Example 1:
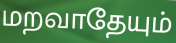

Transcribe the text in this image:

மறவாதேயும்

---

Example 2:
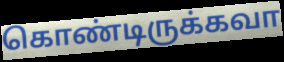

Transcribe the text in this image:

கொண்டிருக்கவா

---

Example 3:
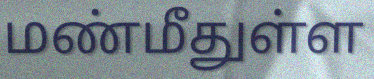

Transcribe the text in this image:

மண்மீதுள்ள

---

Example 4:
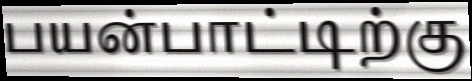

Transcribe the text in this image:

பயன்பாட்டிற்கு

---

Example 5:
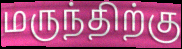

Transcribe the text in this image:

மருந்திற்கு